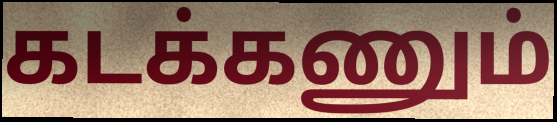
கடக்கணும்